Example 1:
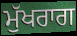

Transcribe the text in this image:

ਮੁੱਖਰਾਗ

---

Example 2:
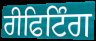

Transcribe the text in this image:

ਰੀਫਿਟਿੰਗ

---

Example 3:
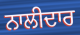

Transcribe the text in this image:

ਨਾਲੀਦਾਰ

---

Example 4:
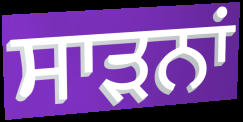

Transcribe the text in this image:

ਸਾੜਨਾਂ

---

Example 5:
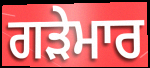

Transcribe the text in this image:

ਗੜੇਮਾਰ